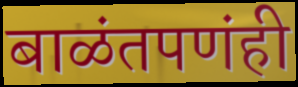
बाळंतपणंही